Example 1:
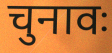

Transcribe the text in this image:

चुनावः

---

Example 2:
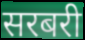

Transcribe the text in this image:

सरबरी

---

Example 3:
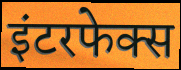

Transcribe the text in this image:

इंटरफेक्स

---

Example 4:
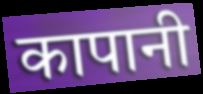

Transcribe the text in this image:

कापानी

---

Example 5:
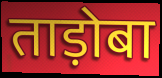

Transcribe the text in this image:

ताड़ोबा